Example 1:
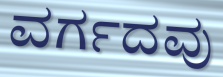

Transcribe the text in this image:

ವರ್ಗದವು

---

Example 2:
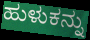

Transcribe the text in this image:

ಹುಳುಕನ್ನು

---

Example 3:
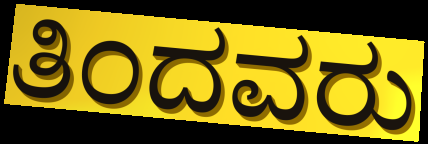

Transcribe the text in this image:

ತಿಂದವರು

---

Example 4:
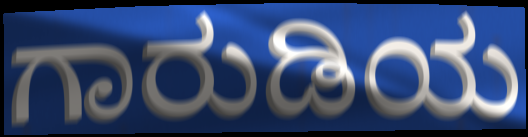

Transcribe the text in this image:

ಗಾರುಡಿಯ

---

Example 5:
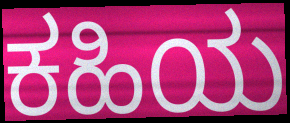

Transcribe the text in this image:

ಕಹಿಯ